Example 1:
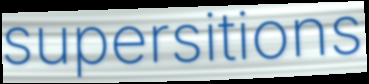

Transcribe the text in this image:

supersitions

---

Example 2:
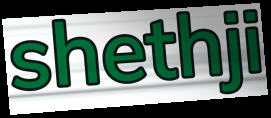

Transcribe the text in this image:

shethji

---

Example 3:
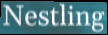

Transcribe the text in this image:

Nestling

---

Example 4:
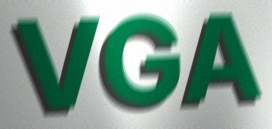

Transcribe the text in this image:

VGA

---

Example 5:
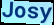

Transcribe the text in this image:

Josy